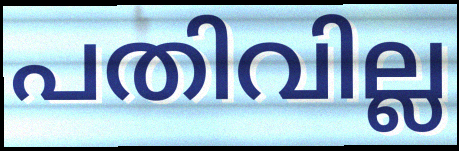
പതിവില്ല